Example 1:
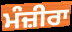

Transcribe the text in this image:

ਮੰਜ਼ੀਰਾ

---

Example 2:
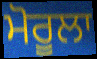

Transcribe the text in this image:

ਮੋਰੂਲਾ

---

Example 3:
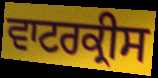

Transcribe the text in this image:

ਵਾਟਰਕ੍ਰੀਸ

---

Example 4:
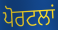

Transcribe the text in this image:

ਪੋਰਟਲਾਂ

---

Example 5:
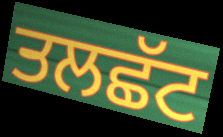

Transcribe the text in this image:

ਤਲਛੱਟ